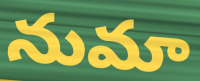
నుమా